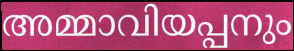
അമ്മാവിയപ്പനും